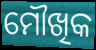
ମୌଖିକ